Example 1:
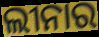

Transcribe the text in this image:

ଲୀନାର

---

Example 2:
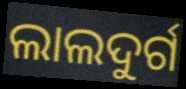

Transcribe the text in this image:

ଲାଲଦୁର୍ଗ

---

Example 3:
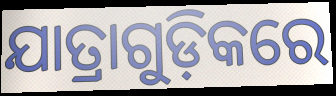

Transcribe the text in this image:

ଯାତ୍ରାଗୁଡ଼ିକରେ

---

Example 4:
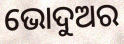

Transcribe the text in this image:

ଭୋଦୁଅର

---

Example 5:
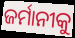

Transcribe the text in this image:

ଜର୍ମାନୀକୁ